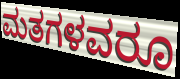
ಮತಗಳವರೂ